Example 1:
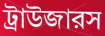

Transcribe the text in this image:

ট্রাউজারস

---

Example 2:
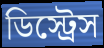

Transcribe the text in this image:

ডিস্ট্রেস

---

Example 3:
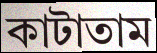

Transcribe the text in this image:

কাটাতাম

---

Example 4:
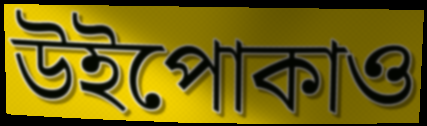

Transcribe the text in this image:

উইপোকাও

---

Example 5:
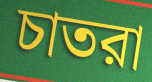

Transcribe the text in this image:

চাতরা